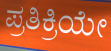
ಪ್ರತಿಕ್ರಿಯೇ